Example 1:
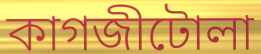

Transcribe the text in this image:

কাগজীটোলা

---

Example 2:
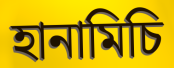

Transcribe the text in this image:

হানামিচি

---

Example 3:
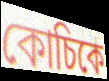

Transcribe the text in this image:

কোচিকে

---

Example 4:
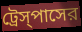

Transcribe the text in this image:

ট্রেস্‌পাসের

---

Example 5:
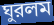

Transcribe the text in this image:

ঘুরলম